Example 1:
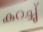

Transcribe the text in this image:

കുറച്ചു്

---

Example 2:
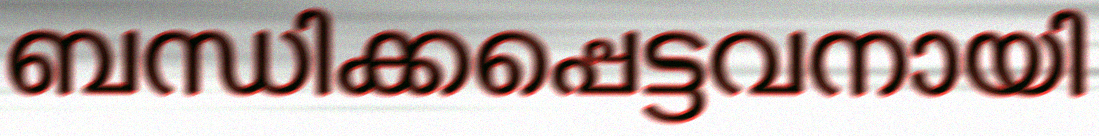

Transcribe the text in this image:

ബന്ധിക്കപ്പെട്ടവനായി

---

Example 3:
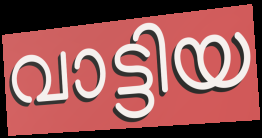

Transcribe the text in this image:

വാട്ടിയ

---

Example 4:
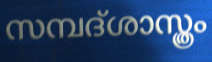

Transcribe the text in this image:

സമ്പദ്ശാസ്ത്രം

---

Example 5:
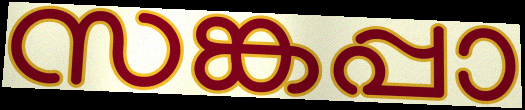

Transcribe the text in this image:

സങ്കപ്പാ